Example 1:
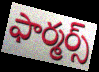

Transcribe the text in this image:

ఫార్మర్స్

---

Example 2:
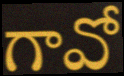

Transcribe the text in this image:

గావో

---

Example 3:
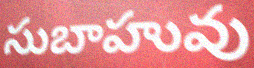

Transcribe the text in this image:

సుబాహువు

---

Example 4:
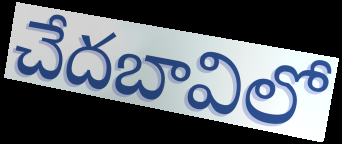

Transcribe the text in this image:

చేదబావిలో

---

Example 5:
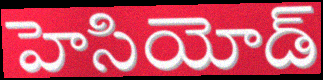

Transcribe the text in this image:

హెసియోడ్